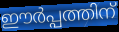
ഈർപ്പത്തിന്